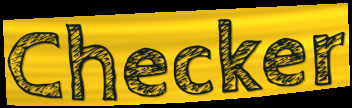
Checker